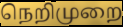
நெறிமுறை